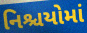
નિશ્ચયોમાં